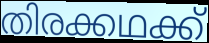
തിരക്കഥക്ക്